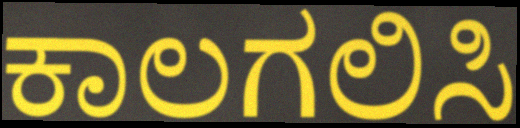
ಕಾಲಗಲಿಸಿ